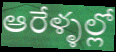
ఆరేళ్ళల్లో